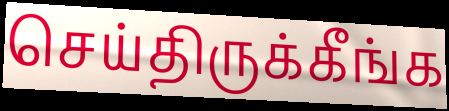
செய்திருக்கீங்க